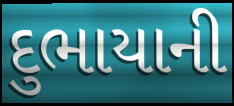
દુભાયાની